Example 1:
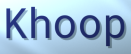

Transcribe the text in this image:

Khoop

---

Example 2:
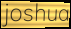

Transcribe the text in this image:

joshua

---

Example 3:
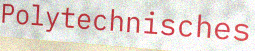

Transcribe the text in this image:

Polytechnisches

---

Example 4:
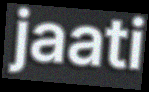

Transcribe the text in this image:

jaati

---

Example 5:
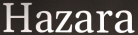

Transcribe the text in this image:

Hazara